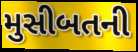
મુસીબતની